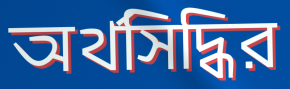
অর্থসিদ্ধির